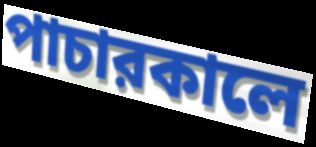
পাচারকালে